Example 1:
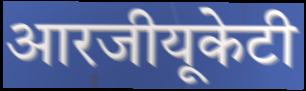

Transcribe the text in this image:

आरजीयूकेटी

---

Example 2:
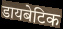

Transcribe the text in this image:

डायबेटिक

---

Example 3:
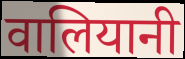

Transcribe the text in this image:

वालियानी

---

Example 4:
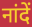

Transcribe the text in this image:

नांदें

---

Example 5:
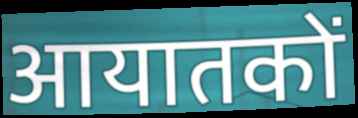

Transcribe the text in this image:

आयातकों